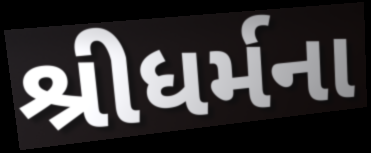
શ્રીધર્મના